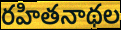
రహితనాథల